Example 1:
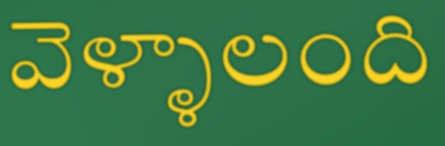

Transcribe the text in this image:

వెళ్ళాలంది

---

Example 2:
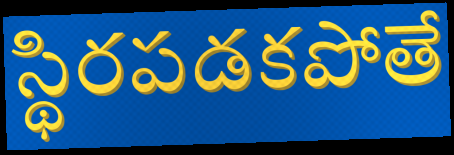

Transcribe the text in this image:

స్థిరపడకపోతే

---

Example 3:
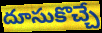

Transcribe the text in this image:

దూసుకొచ్చే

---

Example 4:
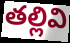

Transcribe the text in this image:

తల్లివి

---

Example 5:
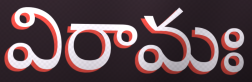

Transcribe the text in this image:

విరామః